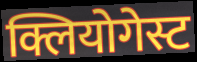
क्लियोगेस्ट